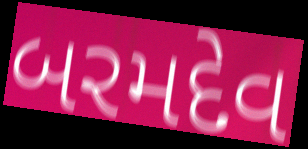
બરમદેવ